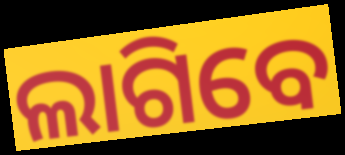
ଲାଗିବେ